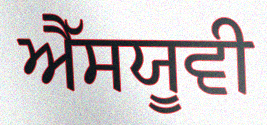
ਐੱਸਯੂਵੀ